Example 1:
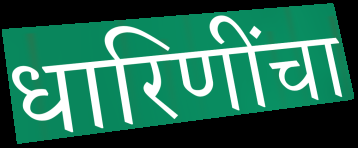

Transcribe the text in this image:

धारिणींचा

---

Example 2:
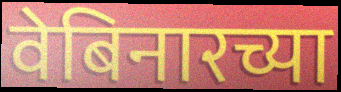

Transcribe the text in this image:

वेबिनारच्या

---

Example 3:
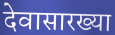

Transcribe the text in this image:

देवासारख्या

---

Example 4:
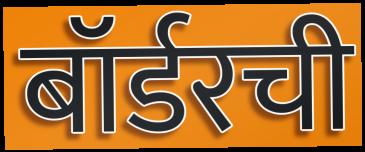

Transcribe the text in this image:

बॉर्डरची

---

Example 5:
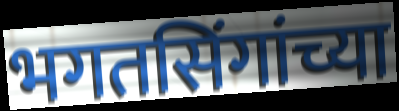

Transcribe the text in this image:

भगतसिंगांच्या